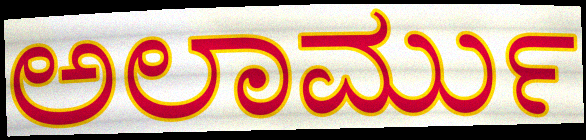
ಅಲಾರ್ಮು